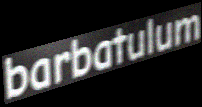
barbatulum